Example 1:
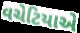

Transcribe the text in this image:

વચેટિયાએ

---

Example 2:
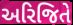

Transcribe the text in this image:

અરિજિતે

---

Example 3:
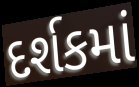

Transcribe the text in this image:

દર્શકમાં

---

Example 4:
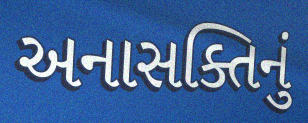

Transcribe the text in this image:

અનાસક્તિનું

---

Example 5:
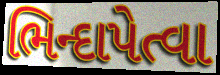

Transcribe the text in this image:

ભિન્દાપેત્વા